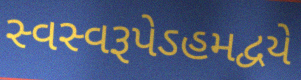
સ્વસ્વરૂપેઽહમદ્વયે